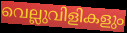
വെല്ലുവിളികളും